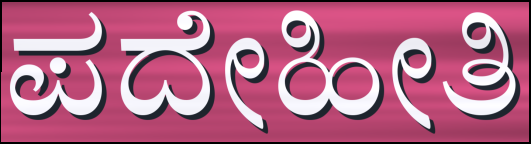
ಪದೇಹೀತಿ